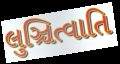
લુઞ્ચિત્વાતિ